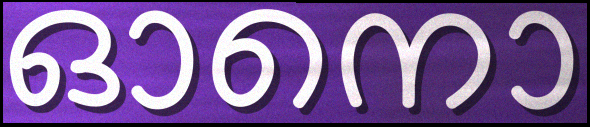
ഓനൊ